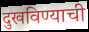
दुखविण्याची